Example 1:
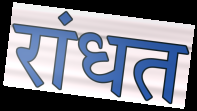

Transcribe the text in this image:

रांधत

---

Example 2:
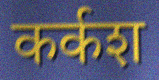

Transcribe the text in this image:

कर्कश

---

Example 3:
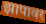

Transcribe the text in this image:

झापावर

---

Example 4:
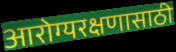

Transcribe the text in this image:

आरोग्यरक्षणासाठी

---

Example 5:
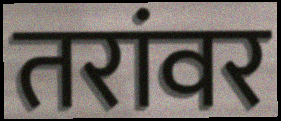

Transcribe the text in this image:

तरांवर